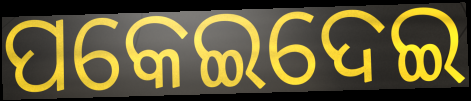
ପକେଇଦେଇ